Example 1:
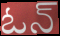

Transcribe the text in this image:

ఓన్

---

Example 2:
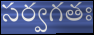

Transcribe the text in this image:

సర్వగతః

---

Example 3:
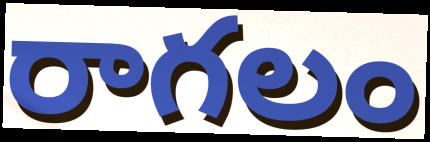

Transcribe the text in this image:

రాగలం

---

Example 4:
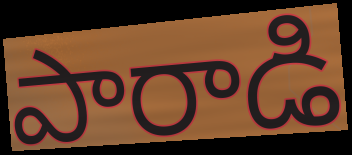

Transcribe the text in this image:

పారాడి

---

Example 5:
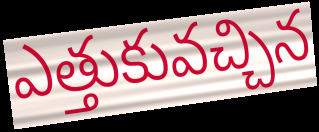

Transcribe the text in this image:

ఎత్తుకువచ్చిన